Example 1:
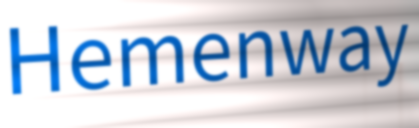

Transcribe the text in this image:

Hemenway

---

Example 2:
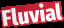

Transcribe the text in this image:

Fluvial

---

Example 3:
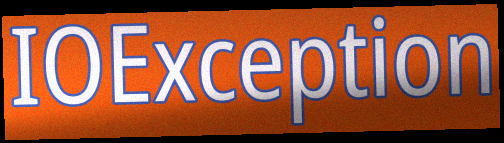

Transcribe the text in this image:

IOException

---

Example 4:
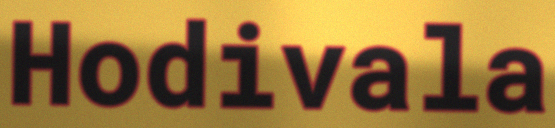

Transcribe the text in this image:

Hodivala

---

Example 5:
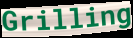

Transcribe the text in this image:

Grilling